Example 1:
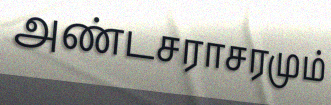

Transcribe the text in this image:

அண்டசராசரமும்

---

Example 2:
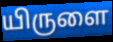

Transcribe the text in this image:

யிருளை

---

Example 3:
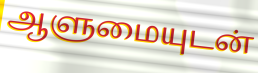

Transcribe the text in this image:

ஆளுமையுடன்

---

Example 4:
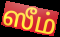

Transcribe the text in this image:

ஸீம்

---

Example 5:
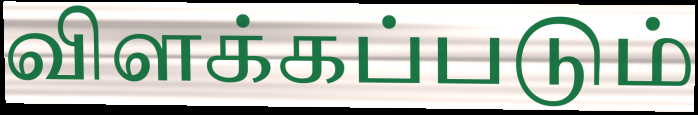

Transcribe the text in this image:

விளக்கப்படும்